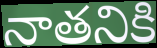
నాతనికి